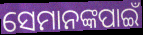
ସେମାନଙ୍କପାଇଁ